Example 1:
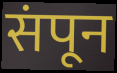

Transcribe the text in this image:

संपून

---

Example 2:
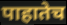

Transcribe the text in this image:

पाहातेच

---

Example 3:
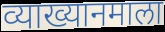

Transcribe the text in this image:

व्याख्यानमाला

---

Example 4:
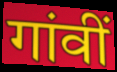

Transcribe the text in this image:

गांवीं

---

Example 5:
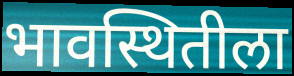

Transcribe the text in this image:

भावस्थितीला